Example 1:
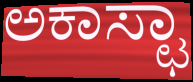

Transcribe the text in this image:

ಅಕಾಸ್ಟಾ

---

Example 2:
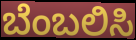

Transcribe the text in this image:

ಬೆಂಬಲಿಸಿ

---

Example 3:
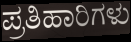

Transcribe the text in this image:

ಪ್ರತಿಹಾರಿಗಳು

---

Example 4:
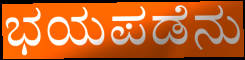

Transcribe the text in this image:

ಭಯಪಡೆನು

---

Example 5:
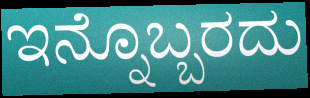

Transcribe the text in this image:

ಇನ್ನೊಬ್ಬರದು